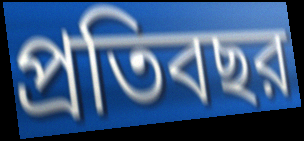
প্রতিবছর